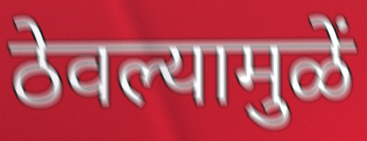
ठेवल्यामुळें